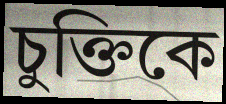
চুক্তিকে